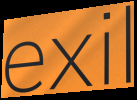
exil